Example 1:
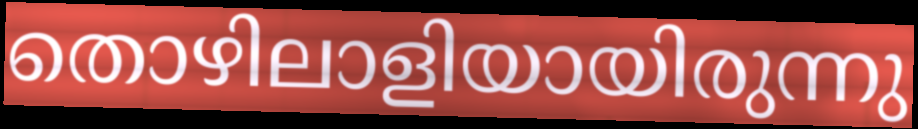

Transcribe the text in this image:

തൊഴിലാളിയായിരുന്നു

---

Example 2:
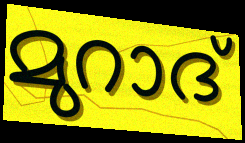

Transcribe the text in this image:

മുറാദ്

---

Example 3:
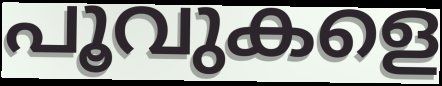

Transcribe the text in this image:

പൂവുകളെ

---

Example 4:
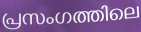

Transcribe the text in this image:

പ്രസംഗത്തിലെ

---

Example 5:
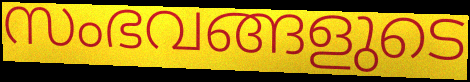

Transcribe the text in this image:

സംഭവങ്ങളുടെ